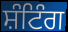
ਸ਼ੰਟਿੰਗ